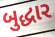
બુદ્ધાર